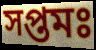
সপ্তমঃ